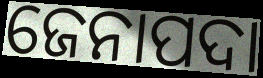
ଜେନାପଦା